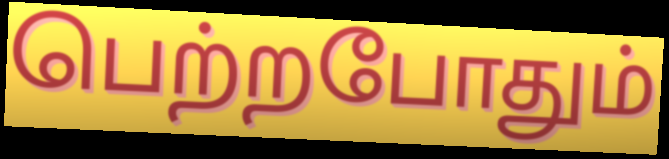
பெற்றபோதும்